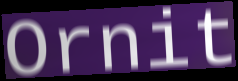
Ornit